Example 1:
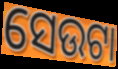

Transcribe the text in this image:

ସେଉଟା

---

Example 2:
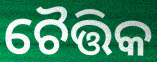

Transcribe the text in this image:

ଚୈତ୍ତିକ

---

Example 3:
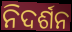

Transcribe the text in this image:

ନିଦର୍ଶନ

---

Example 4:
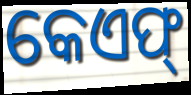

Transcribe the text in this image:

କେଏଫ୍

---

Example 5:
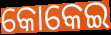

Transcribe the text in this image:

କୋକେଇ